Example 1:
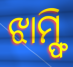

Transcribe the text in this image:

ଝାମ୍ଫି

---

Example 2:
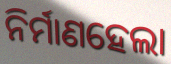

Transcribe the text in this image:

ନିର୍ମାଣହେଲା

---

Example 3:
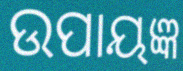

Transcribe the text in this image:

ଉପାୟଜ୍ଞ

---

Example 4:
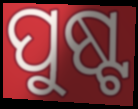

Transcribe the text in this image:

ପୁଷ୍ଟ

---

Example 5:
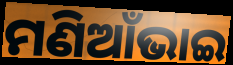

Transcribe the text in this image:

ମଣିଆଁଭାଇ